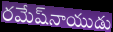
రమేష్‌నాయుడు